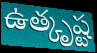
ఉత్కృష్ట